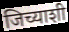
जिच्याशी